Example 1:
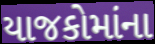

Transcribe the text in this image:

યાજકોમાંના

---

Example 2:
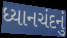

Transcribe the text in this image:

ધ્યાનચંદનું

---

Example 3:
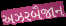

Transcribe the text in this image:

અઝરબૈજાન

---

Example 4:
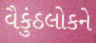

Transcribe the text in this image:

વૈકુંઠલોકને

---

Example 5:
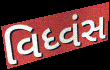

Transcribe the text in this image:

વિધ્વંસ